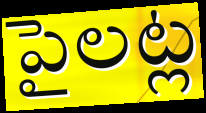
పైలట్ల